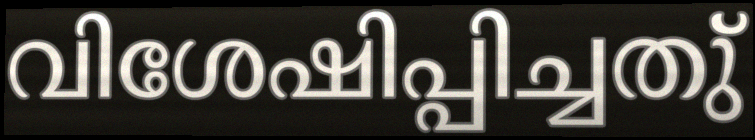
വിശേഷിപ്പിച്ചതു്